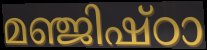
മഞ്ജിഷ്ഠാ